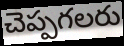
చెప్పగలరు